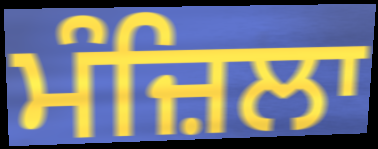
ਮੰਜ਼ਿਲਾ